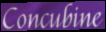
Concubine